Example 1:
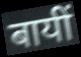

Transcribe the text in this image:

बायीं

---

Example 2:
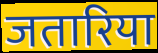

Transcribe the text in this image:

जतारिया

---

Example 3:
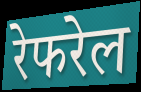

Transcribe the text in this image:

रेफरेल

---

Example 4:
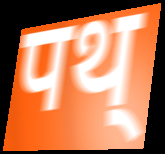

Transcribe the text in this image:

पथ्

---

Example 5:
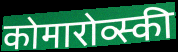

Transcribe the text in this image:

कोमारोव्स्की